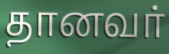
தானவர்